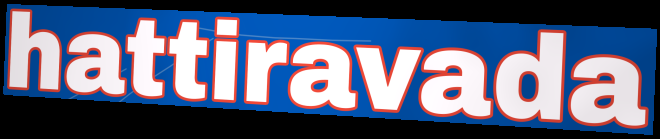
hattiravada